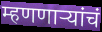
म्हणणाऱ्यांचं